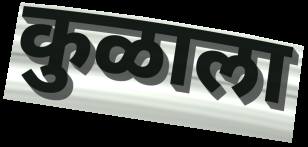
कुळाला